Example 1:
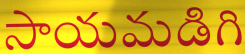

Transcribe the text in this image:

సాయమడిగి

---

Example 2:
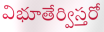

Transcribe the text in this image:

విభూతేర్విస్తరో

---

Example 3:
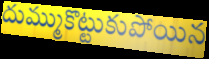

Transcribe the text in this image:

దుమ్ముకొట్టుకుపోయిన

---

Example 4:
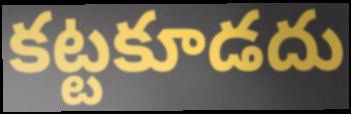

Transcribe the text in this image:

కట్టకూడదు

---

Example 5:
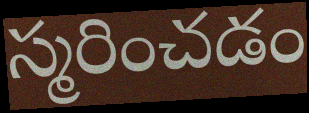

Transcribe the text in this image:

స్మరించడం